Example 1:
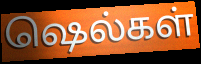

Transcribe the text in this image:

ஷெல்கள்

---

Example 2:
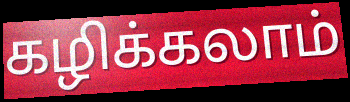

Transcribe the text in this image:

கழிக்கலாம்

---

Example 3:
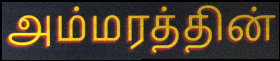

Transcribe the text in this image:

அம்மரத்தின்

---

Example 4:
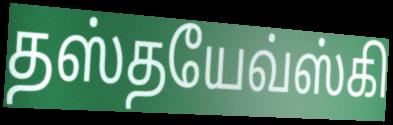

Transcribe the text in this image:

தஸ்தயேவ்ஸ்கி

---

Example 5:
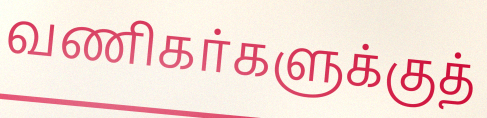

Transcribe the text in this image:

வணிகர்களுக்குத்